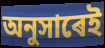
অনুসাৰেই